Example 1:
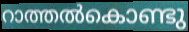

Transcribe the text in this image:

റാത്തൽകൊണ്ടു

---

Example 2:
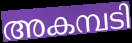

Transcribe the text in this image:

അകമ്പടി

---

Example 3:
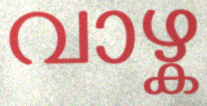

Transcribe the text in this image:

വാഴ്ക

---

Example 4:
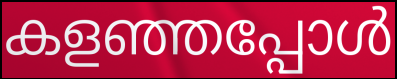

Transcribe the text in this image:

കളഞ്ഞപ്പോൾ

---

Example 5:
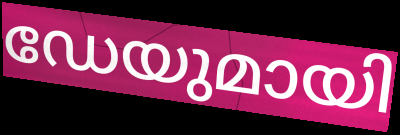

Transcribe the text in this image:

ഡേയുമായി